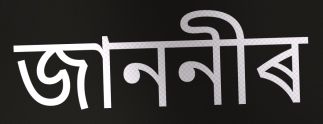
জাননীৰ